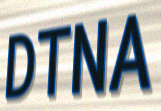
DTNA